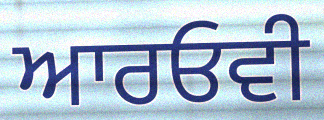
ਆਰਓਵੀ